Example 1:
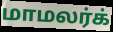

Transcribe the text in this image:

மாமலர்க்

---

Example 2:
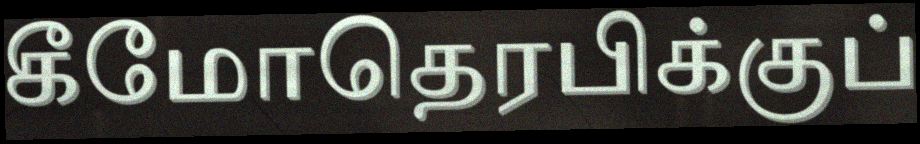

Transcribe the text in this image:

கீமோதெரபிக்குப்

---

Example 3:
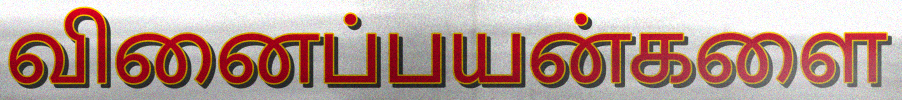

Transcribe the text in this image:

வினைப்பயன்களை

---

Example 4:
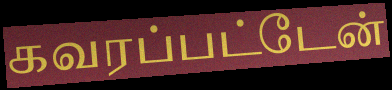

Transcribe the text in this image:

கவரப்பட்டேன்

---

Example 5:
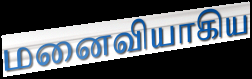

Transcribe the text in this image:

மனைவியாகிய